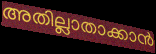
അതില്ലാതാക്കാൻ